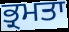
ਭ੍ਰਮਤਾ